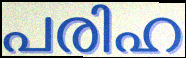
പരിഹ